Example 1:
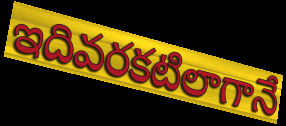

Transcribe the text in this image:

ఇదివరకటిలాగానే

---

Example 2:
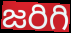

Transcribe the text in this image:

జరిగి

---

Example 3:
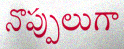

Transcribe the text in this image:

నొప్పులుగా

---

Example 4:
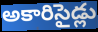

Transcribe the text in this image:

అకారిసైడ్లు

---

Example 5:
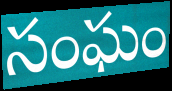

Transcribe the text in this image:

సంఘం